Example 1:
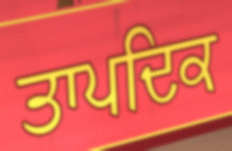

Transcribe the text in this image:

ਤਾਪਦਿਕ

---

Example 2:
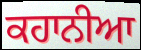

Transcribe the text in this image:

ਕਹਾਨੀਆ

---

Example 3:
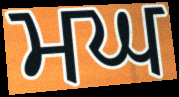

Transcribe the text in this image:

ਮਘ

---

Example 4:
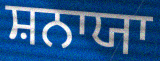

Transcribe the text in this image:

ਸ਼ਨਾਯਾ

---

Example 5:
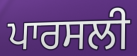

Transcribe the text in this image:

ਪਾਰਸਲੀ